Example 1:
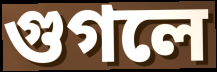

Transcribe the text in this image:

গুগলে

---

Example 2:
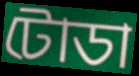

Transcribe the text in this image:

টোডা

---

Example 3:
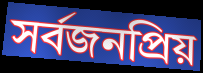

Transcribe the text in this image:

সর্বজনপ্রিয়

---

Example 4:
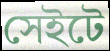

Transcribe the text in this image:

সেইটে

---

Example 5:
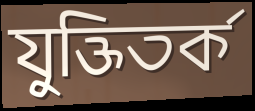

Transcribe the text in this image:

যুক্তিতর্ক